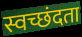
स्वच्छंदता